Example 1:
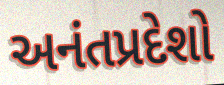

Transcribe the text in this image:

અનંતપ્રદેશો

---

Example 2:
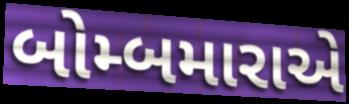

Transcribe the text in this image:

બોમ્બમારાએ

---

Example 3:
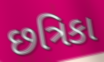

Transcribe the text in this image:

છત્રિકા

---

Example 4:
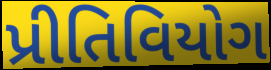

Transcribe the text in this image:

પ્રીતિવિયોગ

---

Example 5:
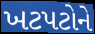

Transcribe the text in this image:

ખટપટોને